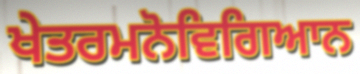
ਖੇਤਰਮਨੋਵਿਗਿਆਨ